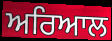
ਅਰਿਆਲ